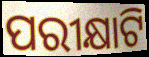
ପରୀକ୍ଷାଟି